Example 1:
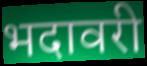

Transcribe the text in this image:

भदावरी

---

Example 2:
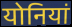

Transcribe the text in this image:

योनियां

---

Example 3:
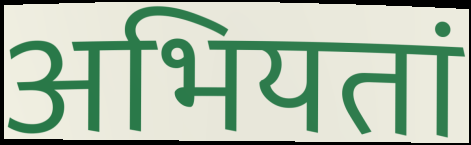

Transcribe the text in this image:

अभियतां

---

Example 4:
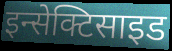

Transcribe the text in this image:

इन्सेक्टिसाइड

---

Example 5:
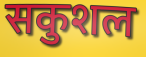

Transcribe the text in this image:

सकुशल